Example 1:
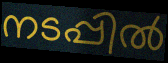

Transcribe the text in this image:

നടപ്പിൽ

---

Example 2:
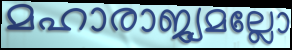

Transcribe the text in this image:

മഹാരാജ്യമല്ലോ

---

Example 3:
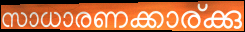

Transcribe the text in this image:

സാധാരണക്കാര്ക്കു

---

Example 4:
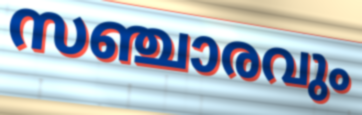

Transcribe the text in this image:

സഞ്ചാരവും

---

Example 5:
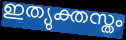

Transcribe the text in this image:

ഇത്യുക്തസ്തം